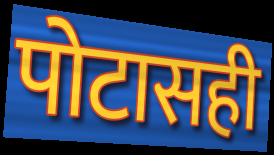
पोटासही